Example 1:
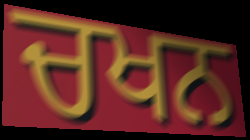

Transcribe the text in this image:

ਚਖਨ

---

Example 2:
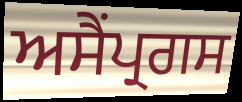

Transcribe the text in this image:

ਅਸੈਂਪ੍ਰਗਸ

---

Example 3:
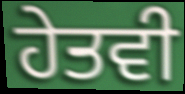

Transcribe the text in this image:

ਹੇਤਵੀ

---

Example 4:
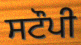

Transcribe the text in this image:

ਸਟੌਪੀ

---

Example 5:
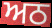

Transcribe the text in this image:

ਅਠ